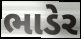
ભાડેર